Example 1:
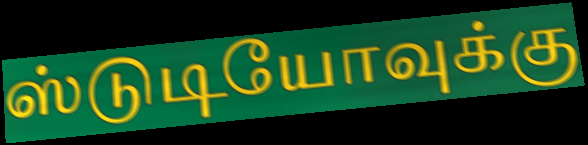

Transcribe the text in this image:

ஸ்டுடியோவுக்கு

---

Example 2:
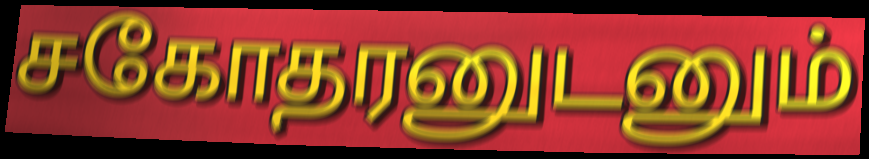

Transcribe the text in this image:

சகோதரனுடனும்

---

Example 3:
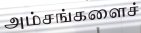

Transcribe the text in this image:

அம்சங்களைச்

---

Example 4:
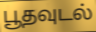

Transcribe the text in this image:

பூதவுடல்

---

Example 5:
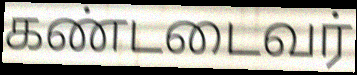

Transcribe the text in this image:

கண்டடைவர்